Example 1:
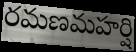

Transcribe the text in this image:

రమణమహర్షి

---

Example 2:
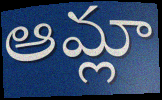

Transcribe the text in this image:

ఆమ్లా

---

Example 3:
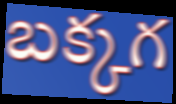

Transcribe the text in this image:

బక్కగ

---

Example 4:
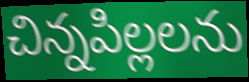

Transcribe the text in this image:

చిన్నపిల్లలను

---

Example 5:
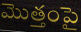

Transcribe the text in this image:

మొత్తంపై